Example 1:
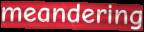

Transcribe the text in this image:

meandering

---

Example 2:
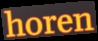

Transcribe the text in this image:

horen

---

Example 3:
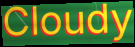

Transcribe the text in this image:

Cloudy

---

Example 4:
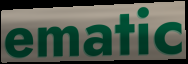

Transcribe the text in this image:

ematic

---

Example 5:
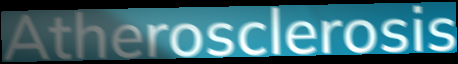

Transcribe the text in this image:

Atherosclerosis